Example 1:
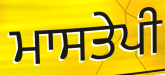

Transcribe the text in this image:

ਮਾਸਤੇਪੀ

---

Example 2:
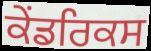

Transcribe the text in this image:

ਕੇਂਡਰਿਕਸ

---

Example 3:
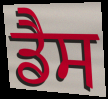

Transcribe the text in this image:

ਡੈਸ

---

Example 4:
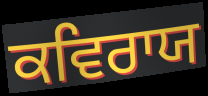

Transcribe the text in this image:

ਕਵਿਰਾਯ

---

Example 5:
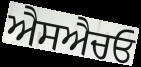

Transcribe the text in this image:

ਐਸਐਚਓ